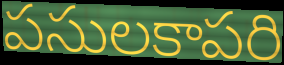
పసులకాపరి